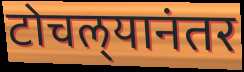
टोचल्यानंतर